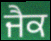
ਜੈਕ